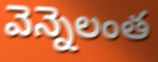
వెన్నెలంత